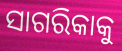
ସାଗରିକାକୁ